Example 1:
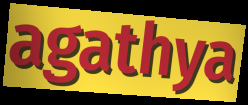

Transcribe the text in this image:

agathya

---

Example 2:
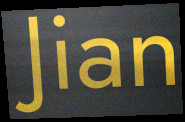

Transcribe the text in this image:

Jian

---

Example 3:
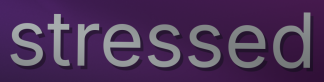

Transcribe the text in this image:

stressed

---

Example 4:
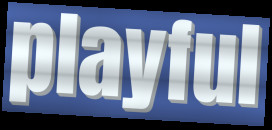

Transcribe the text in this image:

playful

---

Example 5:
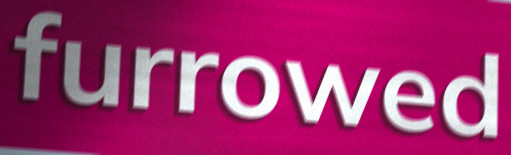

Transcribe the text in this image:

furrowed